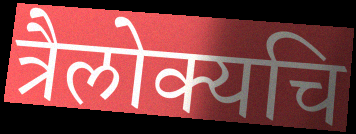
त्रैलोक्यचि